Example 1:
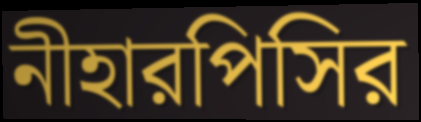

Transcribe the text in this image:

নীহারপিসির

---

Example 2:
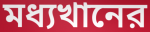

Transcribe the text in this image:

মধ্যখানের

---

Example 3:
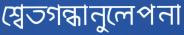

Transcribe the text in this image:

শ্বেতগন্ধানুলেপনা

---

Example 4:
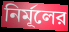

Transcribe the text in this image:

নির্মূলের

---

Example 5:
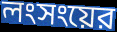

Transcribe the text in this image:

লংসংয়ের